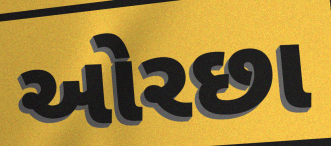
ઓરછા